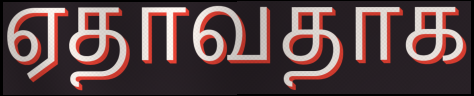
ஏதாவதாக